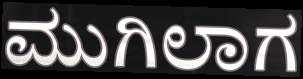
ಮುಗಿಲಾಗ